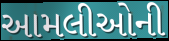
આમલીઓની